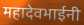
महादेवभाईनी